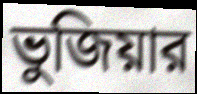
ভুজিয়ার